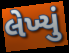
લેખ્યું